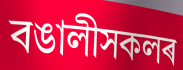
বঙালীসকলৰ